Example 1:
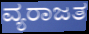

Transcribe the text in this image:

ವ್ಯರಾಜತ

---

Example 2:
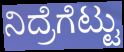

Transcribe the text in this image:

ನಿದ್ರೆಗೆಟ್ಟು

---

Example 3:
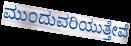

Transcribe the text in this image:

ಮುಂದುವರಿಯುತ್ತೇವೆ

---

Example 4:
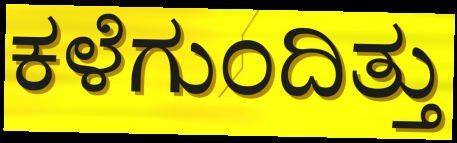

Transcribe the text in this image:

ಕಳೆಗುಂದಿತ್ತು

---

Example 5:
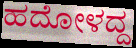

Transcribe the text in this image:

ಹದೋಳದ್ದ